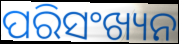
ପରିସଂଖ୍ୟନ